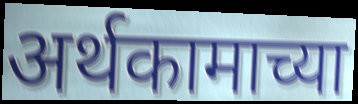
अर्थकामाच्या